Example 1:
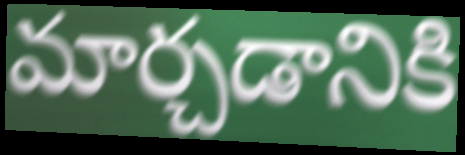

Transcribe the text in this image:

మార్చడానికి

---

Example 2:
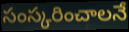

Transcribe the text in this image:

సంస్కరించాలనే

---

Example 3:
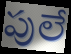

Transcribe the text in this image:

పులే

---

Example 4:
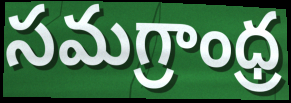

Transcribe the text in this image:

సమగ్రాంధ్ర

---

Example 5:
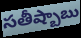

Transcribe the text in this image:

సతీష్బాబు